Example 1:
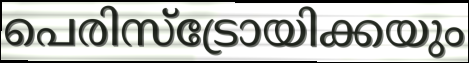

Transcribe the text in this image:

പെരിസ്ട്രോയിക്കയും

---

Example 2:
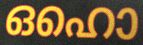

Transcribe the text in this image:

ഒഹൊ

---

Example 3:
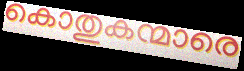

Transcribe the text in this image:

കൊതുകന്മാരെ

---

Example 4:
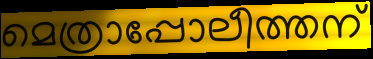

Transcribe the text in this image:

മെത്രാപ്പോലീത്തന്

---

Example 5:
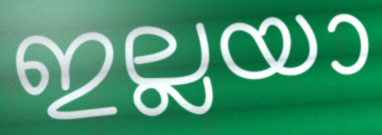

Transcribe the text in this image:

ഇല്ലയാ